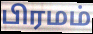
பிரமம்